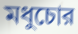
মধুচোর